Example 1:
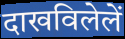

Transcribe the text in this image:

दाखविलेलें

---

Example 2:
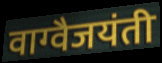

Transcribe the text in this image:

वाग्वैजयंती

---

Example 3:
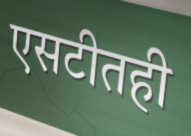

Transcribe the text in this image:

एसटीतही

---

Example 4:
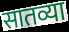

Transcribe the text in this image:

सातव्या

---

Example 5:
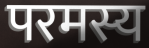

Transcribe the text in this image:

परमस्य